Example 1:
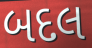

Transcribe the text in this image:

બદલ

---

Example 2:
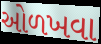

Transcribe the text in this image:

ઓળખવા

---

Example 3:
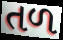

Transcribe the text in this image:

તળ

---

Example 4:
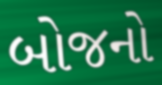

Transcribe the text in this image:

બોજનો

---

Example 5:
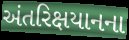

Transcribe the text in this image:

અંતરિક્ષયાનના